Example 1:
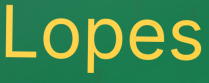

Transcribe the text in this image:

Lopes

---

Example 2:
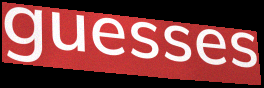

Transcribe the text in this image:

guesses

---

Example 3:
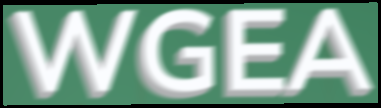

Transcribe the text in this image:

WGEA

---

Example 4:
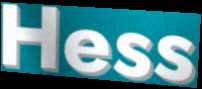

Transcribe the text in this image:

Hess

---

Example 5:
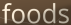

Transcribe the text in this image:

foods